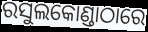
ରସୁଲକୋଣ୍ଡାଠାରେ